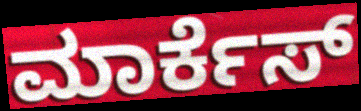
ಮಾರ್ಕೆಸ್